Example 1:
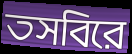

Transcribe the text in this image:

তসবিরে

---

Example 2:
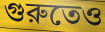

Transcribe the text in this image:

গুরুতেও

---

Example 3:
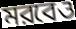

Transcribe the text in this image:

মরবেও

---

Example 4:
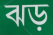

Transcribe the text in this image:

ঝড়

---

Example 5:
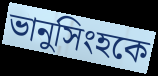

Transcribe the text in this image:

ভানুসিংহকে